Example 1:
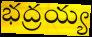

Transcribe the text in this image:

భద్రయ్య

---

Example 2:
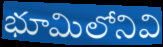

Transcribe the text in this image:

భూమిలోనివి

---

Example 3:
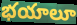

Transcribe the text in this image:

భయాలూ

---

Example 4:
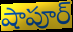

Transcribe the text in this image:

షాపూర్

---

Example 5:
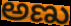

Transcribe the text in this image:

అణు